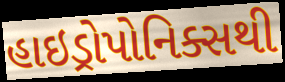
હાઇડ્રોપોનિક્સથી